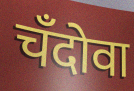
चँदोवा